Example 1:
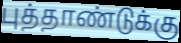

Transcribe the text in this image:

புத்தாண்டுக்கு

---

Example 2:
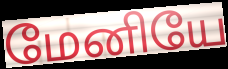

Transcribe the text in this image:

மேனியே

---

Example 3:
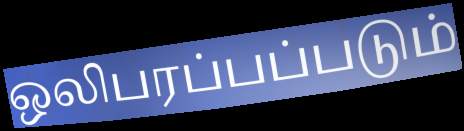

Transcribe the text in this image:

ஒலிபரப்பப்படும்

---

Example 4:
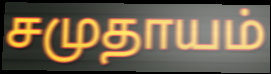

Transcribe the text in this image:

சமுதாயம்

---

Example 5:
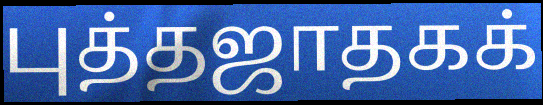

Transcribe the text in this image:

புத்தஜாதகக்